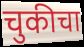
चुकीचा